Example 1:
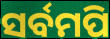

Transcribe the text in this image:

ସର୍ବମପି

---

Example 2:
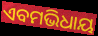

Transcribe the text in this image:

ଏବମଭିଧାୟ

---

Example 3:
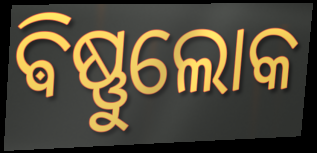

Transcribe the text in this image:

ଵିଷ୍ଣୁଲୋକ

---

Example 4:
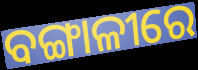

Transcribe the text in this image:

ବଙ୍ଗାଳୀରେ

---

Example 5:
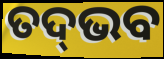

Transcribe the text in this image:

ତଦ୍‌ଭବ